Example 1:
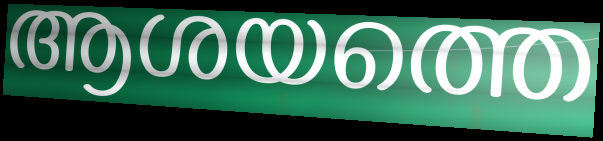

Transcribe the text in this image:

ആശയത്തെ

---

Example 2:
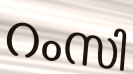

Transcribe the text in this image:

റംസി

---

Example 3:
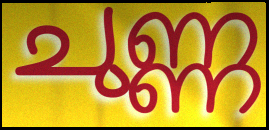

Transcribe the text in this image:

ചുണ്ണ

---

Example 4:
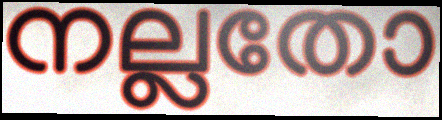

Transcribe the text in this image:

നല്ലതോ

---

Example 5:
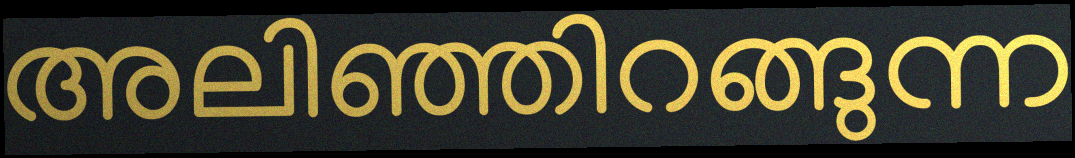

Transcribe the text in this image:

അലിഞ്ഞിറങ്ങുന്ന